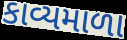
કાવ્યમાળા